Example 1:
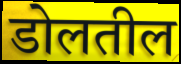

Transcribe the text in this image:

डोलतील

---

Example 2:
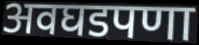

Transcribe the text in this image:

अवघडपणा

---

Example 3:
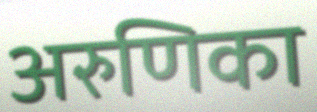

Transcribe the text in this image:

अरुणिका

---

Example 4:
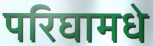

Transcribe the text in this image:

परिघामधे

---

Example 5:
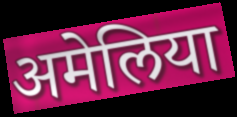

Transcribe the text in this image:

अमेलिया